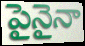
పైనైనా